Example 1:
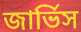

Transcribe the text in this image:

জার্ভিস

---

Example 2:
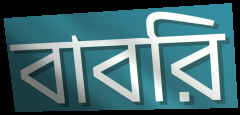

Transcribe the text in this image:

বাবরি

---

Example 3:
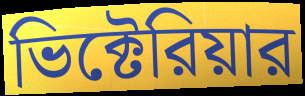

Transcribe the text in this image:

ভিক্টেরিয়ার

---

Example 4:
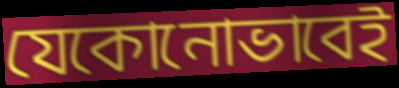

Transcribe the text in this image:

যেকোনোভাবেই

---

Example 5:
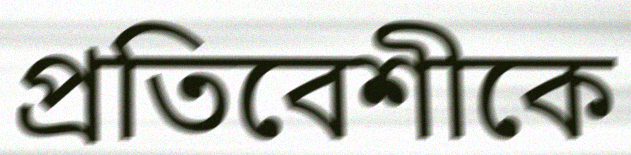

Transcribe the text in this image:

প্রতিবেশীকে